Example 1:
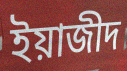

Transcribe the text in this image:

ইয়াজীদ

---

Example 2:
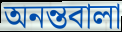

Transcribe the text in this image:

অনন্তবালা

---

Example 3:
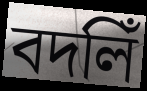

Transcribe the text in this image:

বদলিঁ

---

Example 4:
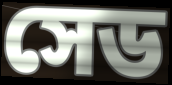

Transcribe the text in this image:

সেড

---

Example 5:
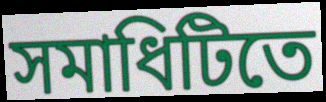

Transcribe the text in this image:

সমাধিটিতে